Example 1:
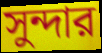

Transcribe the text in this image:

সুন্দার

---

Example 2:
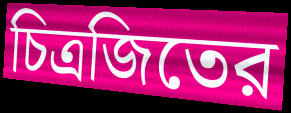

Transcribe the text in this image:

চিত্রজিতের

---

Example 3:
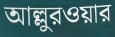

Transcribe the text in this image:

আল্লুরওয়ার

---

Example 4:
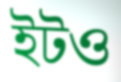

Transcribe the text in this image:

ইটও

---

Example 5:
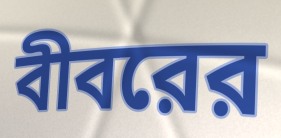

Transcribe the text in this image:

বীবরের